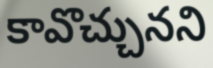
కావొచ్చునని